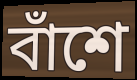
বাঁশে